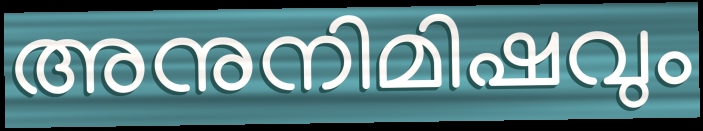
അനുനിമിഷവും